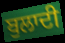
ਬੁਲਾਦੀ